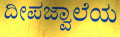
ದೀಪಜ್ವಾಲೆಯ